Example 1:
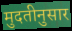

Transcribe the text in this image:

मुदतीनुसार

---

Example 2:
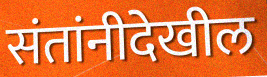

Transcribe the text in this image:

संतांनीदेखील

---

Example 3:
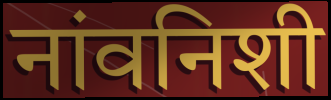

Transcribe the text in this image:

नांवनिशी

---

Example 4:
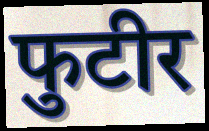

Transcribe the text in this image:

फुटीर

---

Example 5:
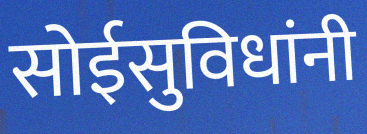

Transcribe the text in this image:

सोईसुविधांनी